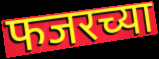
फजरच्या